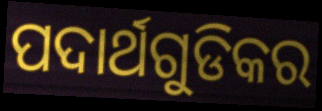
ପଦାର୍ଥଗୁଡିକର